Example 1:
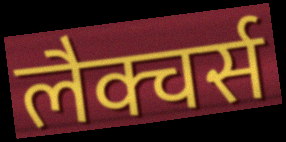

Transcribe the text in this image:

लैक्चर्स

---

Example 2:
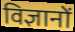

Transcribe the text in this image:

विज्ञानों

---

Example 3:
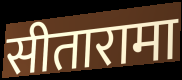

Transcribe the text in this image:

सीतारामा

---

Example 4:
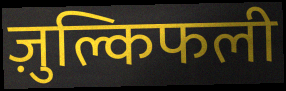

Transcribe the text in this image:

ज़ुल्किफली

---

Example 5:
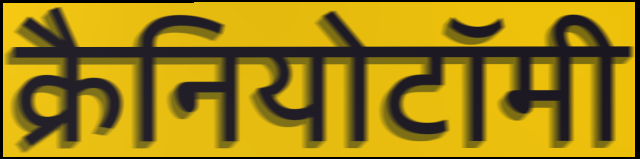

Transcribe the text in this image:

क्रैनियोटॉमी